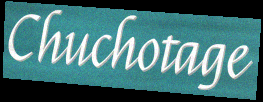
Chuchotage